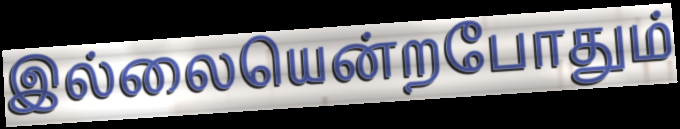
இல்லையென்றபோதும்